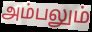
அம்பலும்